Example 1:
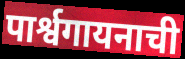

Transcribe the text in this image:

पार्श्वगायनाची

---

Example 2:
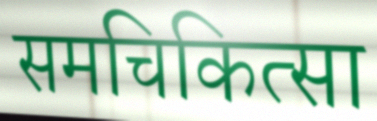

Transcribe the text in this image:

समचिकित्सा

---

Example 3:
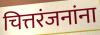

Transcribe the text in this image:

चित्तरंजनांना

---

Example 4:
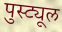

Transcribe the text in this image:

पुस्ट्यूल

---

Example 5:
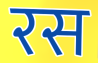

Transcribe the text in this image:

रस